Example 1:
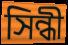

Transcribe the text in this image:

সিন্ধী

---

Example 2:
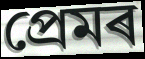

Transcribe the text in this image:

প্ৰেমৰ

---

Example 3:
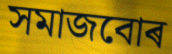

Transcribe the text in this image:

সমাজবোৰ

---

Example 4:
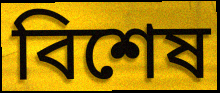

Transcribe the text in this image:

বিশেষ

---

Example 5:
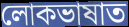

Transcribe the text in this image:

লোকভাষাত